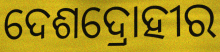
ଦେଶଦ୍ରୋହୀର